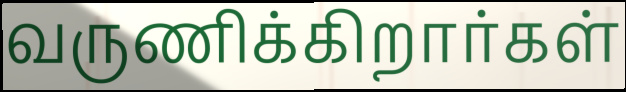
வருணிக்கிறார்கள்